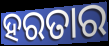
ହରତାର